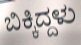
ಬಿಕ್ಕಿದ್ದಳು